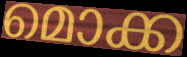
മൊക്ക